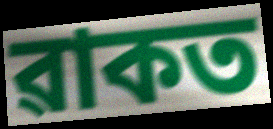
ৱাকত